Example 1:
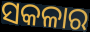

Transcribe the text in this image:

ସକଳାର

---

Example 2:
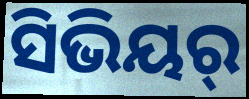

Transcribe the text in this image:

ସିଭିୟର୍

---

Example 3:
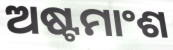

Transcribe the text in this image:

ଅଷ୍ଟମାଂଶ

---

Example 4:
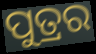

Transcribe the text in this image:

ପୁତ୍ରର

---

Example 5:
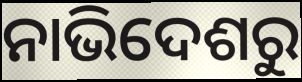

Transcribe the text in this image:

ନାଭିଦେଶରୁ